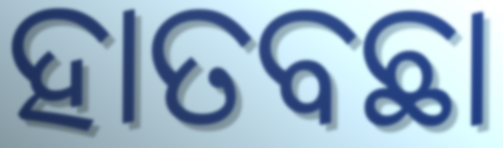
ହାତବଛା